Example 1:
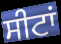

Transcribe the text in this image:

ਸੀਟਾਂ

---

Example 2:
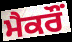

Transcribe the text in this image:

ਮੈਕਰੌਂ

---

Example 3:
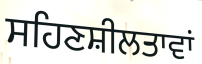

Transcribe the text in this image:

ਸਹਿਣਸ਼ੀਲਤਾਵਾਂ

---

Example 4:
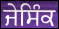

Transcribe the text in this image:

ਜੇਸਿੰਕ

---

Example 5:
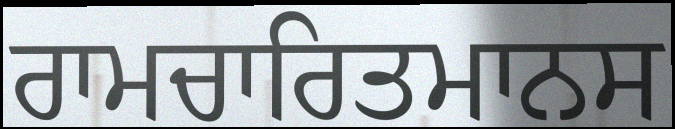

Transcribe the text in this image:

ਰਾਮਚਾਰਿਤਮਾਨਸ